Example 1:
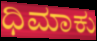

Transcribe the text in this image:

ಧಿಮಾಕು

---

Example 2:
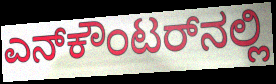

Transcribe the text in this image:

ಎನ್‌ಕೌಂಟರ್‌ನಲ್ಲಿ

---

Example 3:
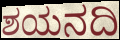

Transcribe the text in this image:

ಶಯನದಿ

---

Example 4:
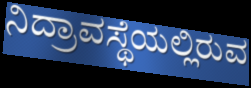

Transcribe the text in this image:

ನಿದ್ರಾವಸ್ಥೆಯಲ್ಲಿರುವ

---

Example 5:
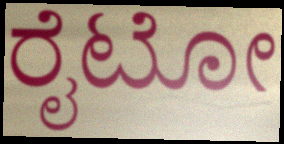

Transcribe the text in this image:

ರೈಟೋ